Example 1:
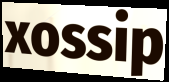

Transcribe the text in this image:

xossip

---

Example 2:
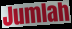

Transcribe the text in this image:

Jumlah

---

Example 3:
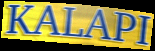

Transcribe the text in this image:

KALAPI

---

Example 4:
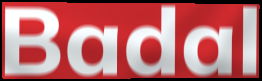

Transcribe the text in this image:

Badal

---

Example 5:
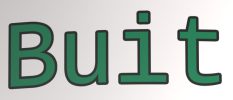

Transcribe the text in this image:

Buit